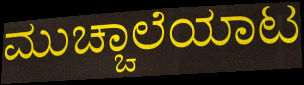
ಮುಚ್ಚಾಲೆಯಾಟ